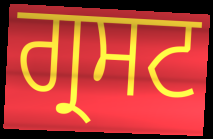
ਗ੍ਰਸਟ